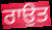
ਰਾਉਤ